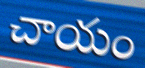
చాయం